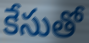
కేసుతో